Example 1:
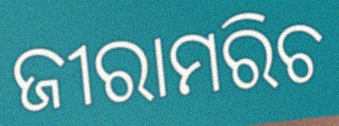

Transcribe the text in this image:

ଜୀରାମରିଚ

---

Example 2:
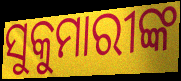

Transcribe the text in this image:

ସୁକୁମାରୀଙ୍କ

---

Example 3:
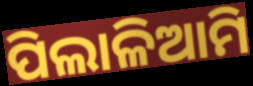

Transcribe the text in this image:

ପିଲାଳିଆମି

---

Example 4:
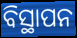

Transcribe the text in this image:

ବିସ୍ଥାପନ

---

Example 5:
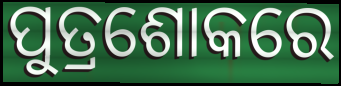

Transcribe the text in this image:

ପୁତ୍ରଶୋକରେ